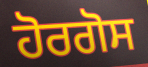
ਹੋਰਗੋਸ